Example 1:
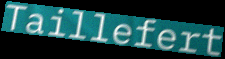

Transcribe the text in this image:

Taillefert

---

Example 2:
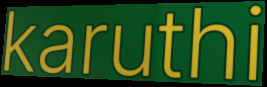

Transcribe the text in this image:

karuthi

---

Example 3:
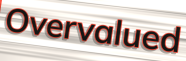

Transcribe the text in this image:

Overvalued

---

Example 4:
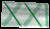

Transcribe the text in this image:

XXI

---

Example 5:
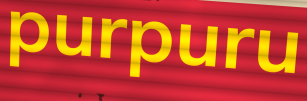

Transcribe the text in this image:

purpuru